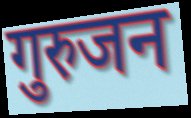
गुरुजन